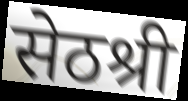
सेठश्री